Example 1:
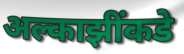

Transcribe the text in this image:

अल्काझींकडे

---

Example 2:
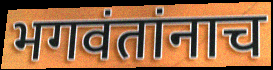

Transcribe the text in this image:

भगवंतांनाच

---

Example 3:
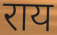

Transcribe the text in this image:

राय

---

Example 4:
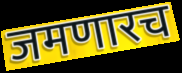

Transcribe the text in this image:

जमणारच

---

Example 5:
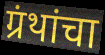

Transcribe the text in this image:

ग्रंथांचा